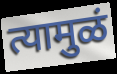
त्यामुळं